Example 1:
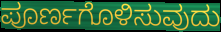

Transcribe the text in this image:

ಪೂರ್ಣಗೊಳಿಸುವುದು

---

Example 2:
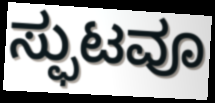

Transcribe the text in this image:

ಸ್ಫುಟವೂ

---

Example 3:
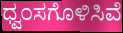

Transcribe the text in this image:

ಧ್ವಂಸಗೊಳಿಸಿವೆ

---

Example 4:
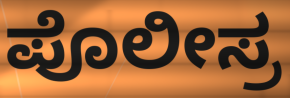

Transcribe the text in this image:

ಪೊಲೀಸ್ರ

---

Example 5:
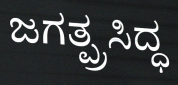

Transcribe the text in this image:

ಜಗತ್ಪ್ರಸಿದ್ಧ